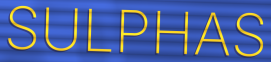
SULPHAS